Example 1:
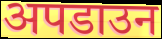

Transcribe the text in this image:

अपडाउन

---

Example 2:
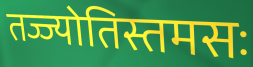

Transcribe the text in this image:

तज्ज्योतिस्तमसः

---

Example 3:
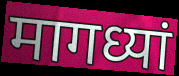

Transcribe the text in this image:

मागध्यां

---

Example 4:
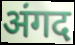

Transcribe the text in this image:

अंगद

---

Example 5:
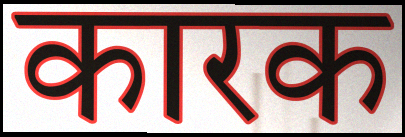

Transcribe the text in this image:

कारक